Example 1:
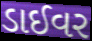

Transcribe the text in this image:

ડાઈવર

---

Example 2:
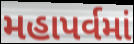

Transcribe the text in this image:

મહાપર્વમાં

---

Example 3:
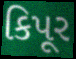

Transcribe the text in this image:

કિપૂર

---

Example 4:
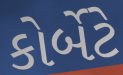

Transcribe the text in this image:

કોર્બેટે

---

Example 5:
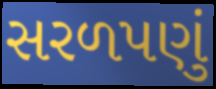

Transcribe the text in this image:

સરળપણું